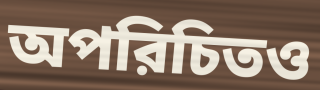
অপরিচিতও